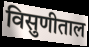
विसुणीताल